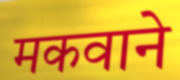
मकवाने